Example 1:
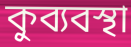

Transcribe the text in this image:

কুব্যবস্থা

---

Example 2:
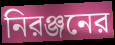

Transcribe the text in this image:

নিরঞ্জনের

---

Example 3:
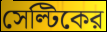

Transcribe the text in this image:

সেল্টিকের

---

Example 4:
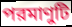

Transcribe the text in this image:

পরমাণুটি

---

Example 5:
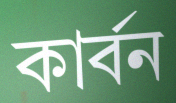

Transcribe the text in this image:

কার্বন